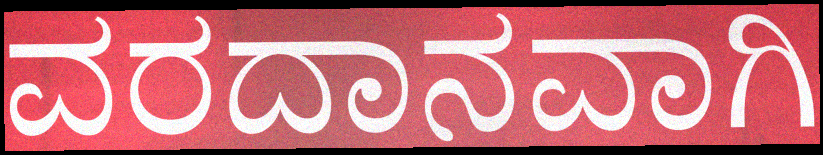
ವರದಾನವಾಗಿ